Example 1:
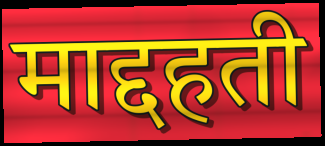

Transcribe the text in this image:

माद्दहती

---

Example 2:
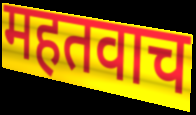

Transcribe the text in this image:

महतवाच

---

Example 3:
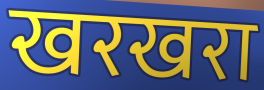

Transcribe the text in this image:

खरखरा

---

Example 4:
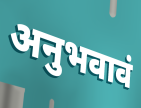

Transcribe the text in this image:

अनुभवावं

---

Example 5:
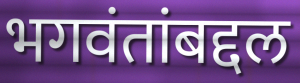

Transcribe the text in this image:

भगवंतांबद्दल